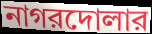
নাগরদোলার